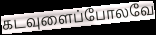
கடவுளைப்போலவே